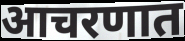
आचरणात